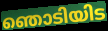
ഞൊടിയിട